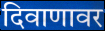
दिवाणावर